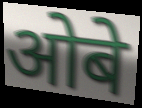
ओबे